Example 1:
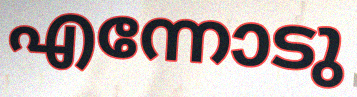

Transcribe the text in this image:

എന്നോടു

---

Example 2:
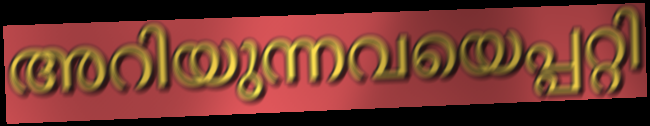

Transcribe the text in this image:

അറിയുന്നവയെപ്പറ്റി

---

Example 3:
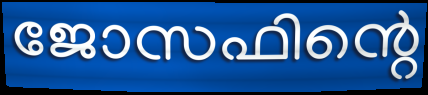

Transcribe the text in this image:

ജോസഫിന്റെ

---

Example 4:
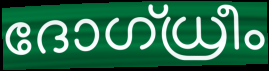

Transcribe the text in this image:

ദോഗ്ധ്രീം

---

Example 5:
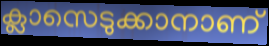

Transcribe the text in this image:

ക്ലാസെടുക്കാനാണ്